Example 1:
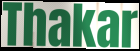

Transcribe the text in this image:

Thakar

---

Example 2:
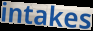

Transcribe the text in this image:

intakes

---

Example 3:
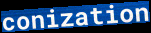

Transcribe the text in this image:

conization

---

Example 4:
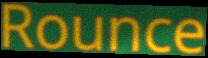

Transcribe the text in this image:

Rounce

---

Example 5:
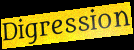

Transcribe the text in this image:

Digression